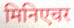
मिनिएचर